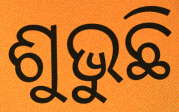
ଶୁଭୁଛି